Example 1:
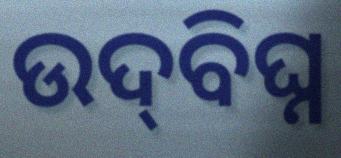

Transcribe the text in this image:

ଉଦ୍‍ବିଘ୍ନ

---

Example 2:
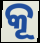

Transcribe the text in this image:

କୂ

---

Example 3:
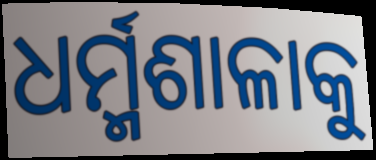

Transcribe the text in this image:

ଧର୍ମ୍ମଶାଳାକୁ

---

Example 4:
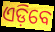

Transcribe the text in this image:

ଏଡ଼ିବେ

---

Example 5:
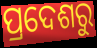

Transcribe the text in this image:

ପ୍ରଦେଶରୁ